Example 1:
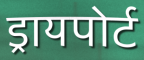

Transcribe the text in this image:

ड्रायपोर्ट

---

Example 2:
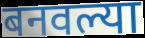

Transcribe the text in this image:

बनवल्या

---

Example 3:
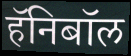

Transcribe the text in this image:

हॅनिबॉल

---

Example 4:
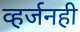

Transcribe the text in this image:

व्हर्जनही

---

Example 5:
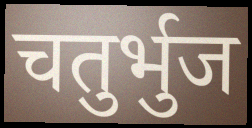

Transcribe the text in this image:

चतुर्भुज